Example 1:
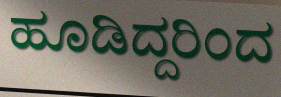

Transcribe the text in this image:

ಹೂಡಿದ್ದರಿಂದ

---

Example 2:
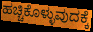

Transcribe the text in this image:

ಹಚ್ಚಿಕೊಳ್ಳುವುದಕ್ಕೆ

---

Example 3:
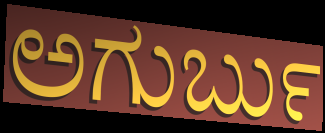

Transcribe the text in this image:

ಅಗುರ್ಬು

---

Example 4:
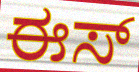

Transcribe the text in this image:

ಈಸ್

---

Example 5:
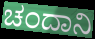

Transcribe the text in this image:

ಚಂದಾನಿ